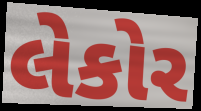
લેકોર